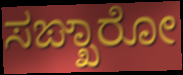
ಸಙ್ಖಾರೋ